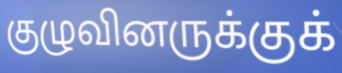
குழுவினருக்குக்